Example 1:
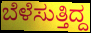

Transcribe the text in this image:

ಬೆಳೆಸುತ್ತಿದ್ದ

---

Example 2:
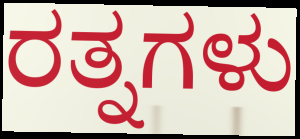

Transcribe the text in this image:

ರತ್ನಗಳು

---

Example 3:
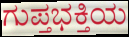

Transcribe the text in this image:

ಗುಪ್ತಭಕ್ತಿಯ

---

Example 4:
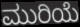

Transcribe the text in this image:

ಮುರಿಯೆ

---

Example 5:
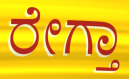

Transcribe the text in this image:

ರೇಗ್ತಾ